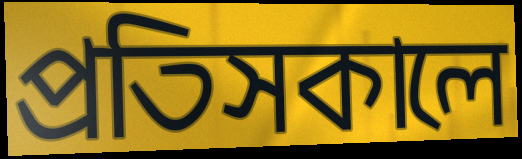
প্রতিসকালে